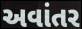
અવાંતર